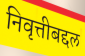
निवृत्तीबद्दल